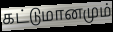
கட்டுமானமும்